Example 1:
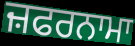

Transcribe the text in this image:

ਜ਼ਫਰਨਾਮਾ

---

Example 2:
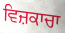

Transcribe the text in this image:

ਵਿਜ਼ਕਾਚਾ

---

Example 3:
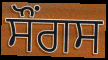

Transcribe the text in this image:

ਸੌਂਗਸ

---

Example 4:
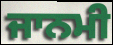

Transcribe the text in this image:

ਜਾਨਮੀ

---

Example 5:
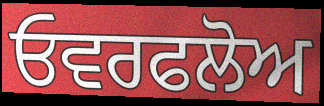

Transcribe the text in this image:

ਓਵਰਫਲੋਅ